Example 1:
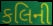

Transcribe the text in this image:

કલિની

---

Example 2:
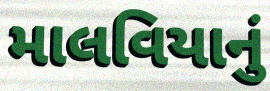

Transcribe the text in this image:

માલવિયાનું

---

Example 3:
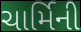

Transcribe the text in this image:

ચાર્મિની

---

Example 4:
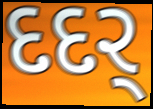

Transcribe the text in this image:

દદર્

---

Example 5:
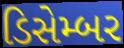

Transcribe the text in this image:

ડિસેમ્બર